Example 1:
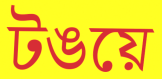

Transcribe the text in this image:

টঙয়ে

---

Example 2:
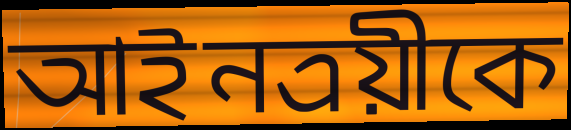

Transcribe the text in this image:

আইনত্রয়ীকে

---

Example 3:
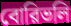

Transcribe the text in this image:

বোরিভলি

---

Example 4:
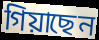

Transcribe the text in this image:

গিয়াছেন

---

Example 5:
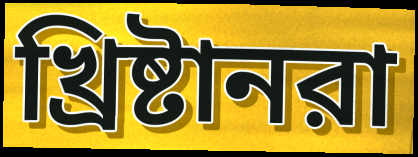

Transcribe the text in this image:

খ্রিষ্টানরা